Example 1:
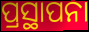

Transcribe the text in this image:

ପ୍ରସ୍ଥାପନା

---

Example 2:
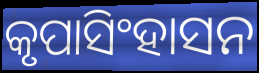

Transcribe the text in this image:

କୃପାସିଂହାସନ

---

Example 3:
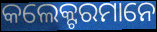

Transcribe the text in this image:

କଲେକ୍ଟରମାନେ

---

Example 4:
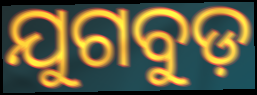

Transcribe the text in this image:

ଯୁଗବୁଡ଼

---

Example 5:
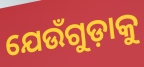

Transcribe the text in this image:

ଯେଉଁଗୁଡ଼ାକୁ